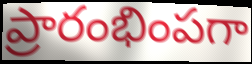
ప్రారంభింపగా